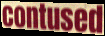
contused